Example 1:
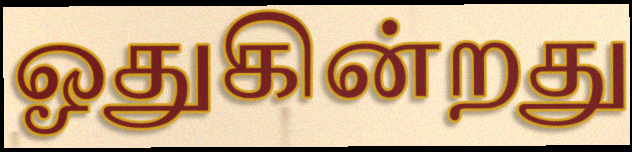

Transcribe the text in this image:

ஓதுகின்றது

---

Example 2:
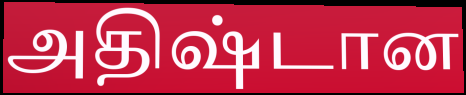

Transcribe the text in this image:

அதிஷ்டான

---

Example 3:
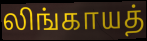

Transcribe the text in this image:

லிங்காயத்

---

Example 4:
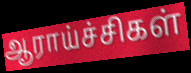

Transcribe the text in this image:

ஆராய்ச்சிகள்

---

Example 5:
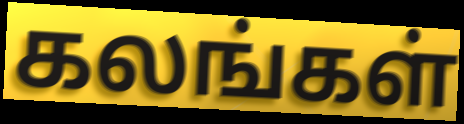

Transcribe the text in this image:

கலங்கள்